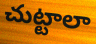
చుట్టాలా